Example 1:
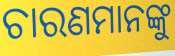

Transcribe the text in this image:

ଚାରଣମାନଙ୍କୁ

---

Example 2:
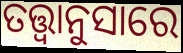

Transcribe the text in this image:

ତତ୍ତ୍ୱାନୁସାରେ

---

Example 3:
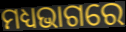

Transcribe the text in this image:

ମଧ୍ୟଭାଗରେ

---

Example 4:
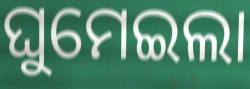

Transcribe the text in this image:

ଘୁମେଇଲା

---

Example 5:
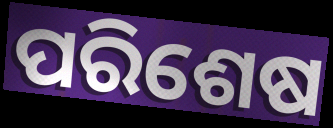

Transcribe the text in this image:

ପରିଶେଷ